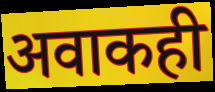
अवाकही